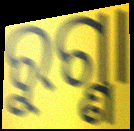
ରୁଗ୍ଣା